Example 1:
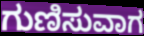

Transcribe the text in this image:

ಗುಣಿಸುವಾಗ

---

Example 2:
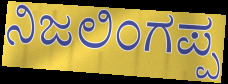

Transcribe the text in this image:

ನಿಜಲಿಂಗಪ್ಪ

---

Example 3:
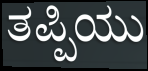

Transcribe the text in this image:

ತಪ್ಪಿಯು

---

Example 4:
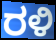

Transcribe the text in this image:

ರಳಿ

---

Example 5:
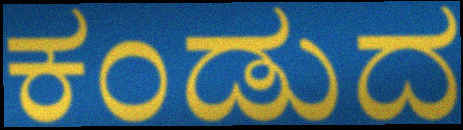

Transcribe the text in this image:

ಕಂಡುದ